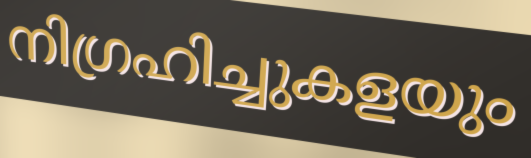
നിഗ്രഹിച്ചുകളയും